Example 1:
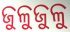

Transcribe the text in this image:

ଜୁଳୁଜୁଳୁ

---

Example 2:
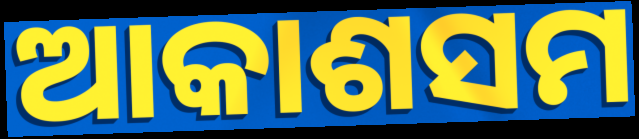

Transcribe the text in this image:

ଆକାଶସମ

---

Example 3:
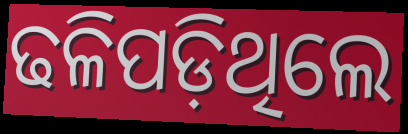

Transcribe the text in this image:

ଢଳିପଡ଼ିଥିଲେ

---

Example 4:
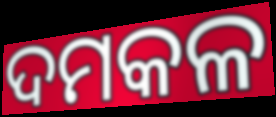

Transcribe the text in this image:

ଦମକଳ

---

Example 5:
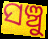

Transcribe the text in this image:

ସଞ୍ଚୁ